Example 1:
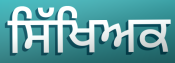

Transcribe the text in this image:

ਸਿੱਖਿਅਕ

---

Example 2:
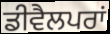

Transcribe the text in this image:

ਡੀਵੈਲਪਰਾਂ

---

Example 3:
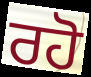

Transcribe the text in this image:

ਰਹੋ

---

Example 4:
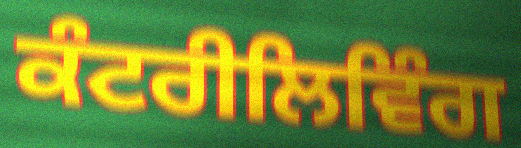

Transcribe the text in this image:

ਕੰਟਰੀਲਿਵਿੰਗ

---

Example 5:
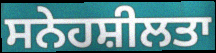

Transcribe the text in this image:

ਸਨੇਹਸ਼ੀਲਤਾ